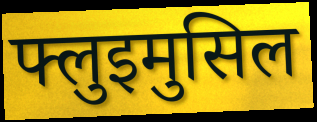
फ्लुइमुसिल